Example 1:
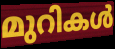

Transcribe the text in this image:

മുറികൾ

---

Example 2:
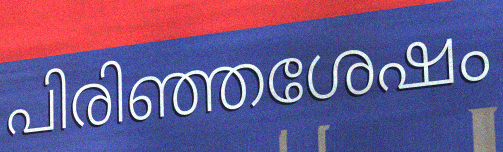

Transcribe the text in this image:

പിരിഞ്ഞശേഷം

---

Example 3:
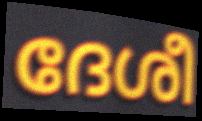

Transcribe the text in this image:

ദേശീ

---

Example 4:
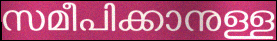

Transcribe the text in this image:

സമീപിക്കാനുള്ള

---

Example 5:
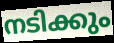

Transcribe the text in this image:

നടിക്കും